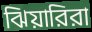
ঝিয়ারিরা